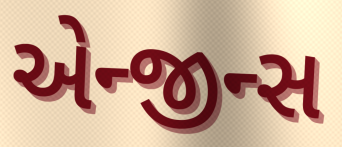
એન્જીન્સ